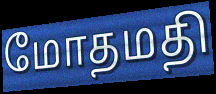
மோதமதி